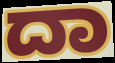
ದಾ